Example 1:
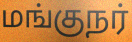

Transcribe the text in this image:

மங்குநர்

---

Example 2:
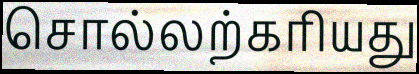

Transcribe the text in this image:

சொல்லற்கரியது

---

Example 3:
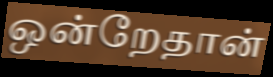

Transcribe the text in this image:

ஒன்றேதான்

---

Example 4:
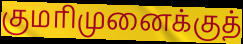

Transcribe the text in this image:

குமரிமுனைக்குத்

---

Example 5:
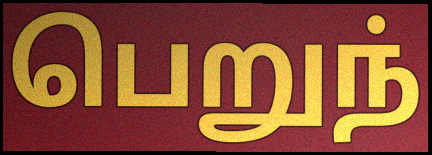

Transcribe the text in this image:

பெறுந்